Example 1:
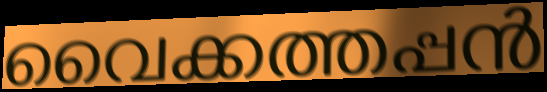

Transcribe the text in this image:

വൈക്കത്തപ്പൻ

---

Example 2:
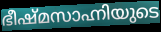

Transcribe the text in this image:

ഭീഷ്മസാഹ്നിയുടെ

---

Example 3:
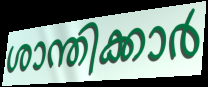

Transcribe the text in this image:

ശാന്തിക്കാർ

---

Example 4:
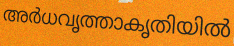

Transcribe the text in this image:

അർധവൃത്താകൃതിയിൽ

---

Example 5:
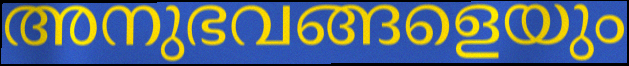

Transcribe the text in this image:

അനുഭവങ്ങളെയും